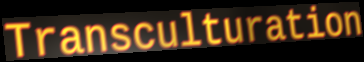
Transculturation